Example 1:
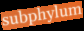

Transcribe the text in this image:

subphylum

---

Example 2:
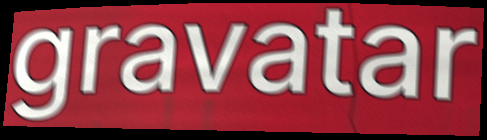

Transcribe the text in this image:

gravatar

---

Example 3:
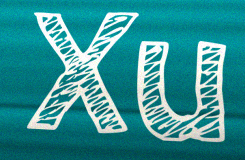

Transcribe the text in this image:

Xu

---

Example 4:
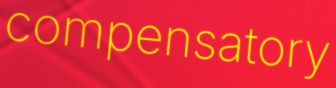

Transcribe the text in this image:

compensatory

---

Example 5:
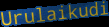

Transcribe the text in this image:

Urulaikudi